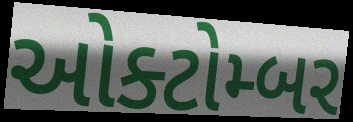
ઓક્ટોમ્બર